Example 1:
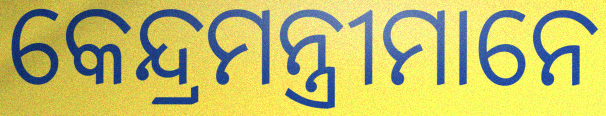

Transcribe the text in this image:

କେନ୍ଦ୍ରମନ୍ତ୍ରୀମାନେ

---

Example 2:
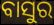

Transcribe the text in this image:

ବାସୁର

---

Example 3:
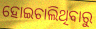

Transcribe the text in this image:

ହୋଇଚାଲିଥିବାରୁ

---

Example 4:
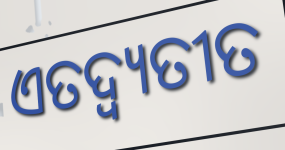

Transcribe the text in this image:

ଏତଦ୍ବ୍ୟତୀତ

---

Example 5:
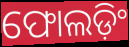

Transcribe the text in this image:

ଫୋଲଡ଼ିଂ